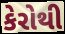
કેરોથી